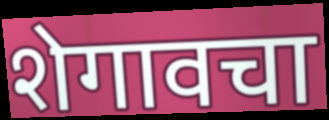
शेगावचा